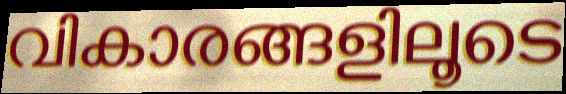
വികാരങ്ങളിലൂടെ